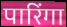
पारिंगा